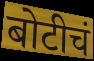
बोटीचं